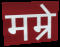
मम्रे